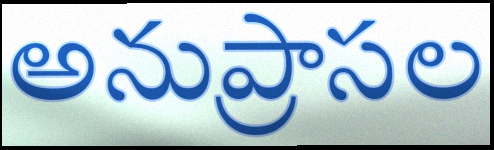
అనుప్రాసల